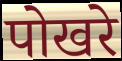
पोखरे